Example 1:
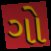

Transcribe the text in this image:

ગો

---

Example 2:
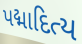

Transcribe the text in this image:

પદ્માદિત્ય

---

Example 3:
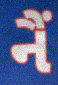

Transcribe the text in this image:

નૈં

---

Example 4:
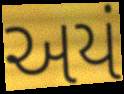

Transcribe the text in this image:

અયં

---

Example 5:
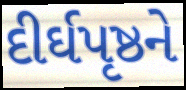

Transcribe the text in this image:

દીર્ઘપૃષ્ઠને